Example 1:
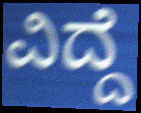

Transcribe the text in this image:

ವಿದ್ದೆ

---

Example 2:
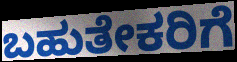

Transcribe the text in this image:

ಬಹುತೇಕರಿಗೆ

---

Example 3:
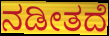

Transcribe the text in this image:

ನಡೀತದೆ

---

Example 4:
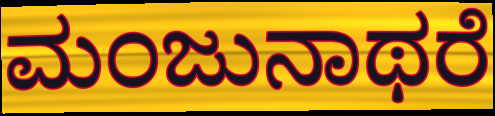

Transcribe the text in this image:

ಮಂಜುನಾಥರೆ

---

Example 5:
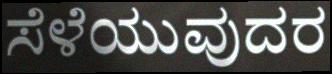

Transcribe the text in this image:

ಸೆಳೆಯುವುದರ